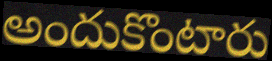
అందుకొంటారు